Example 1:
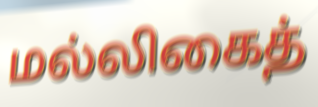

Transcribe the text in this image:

மல்லிகைத்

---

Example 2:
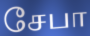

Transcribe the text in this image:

சேபா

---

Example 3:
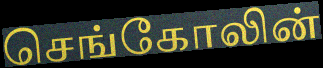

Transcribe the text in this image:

செங்கோலின்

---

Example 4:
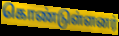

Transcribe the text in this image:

கொண்டுள்ளனர்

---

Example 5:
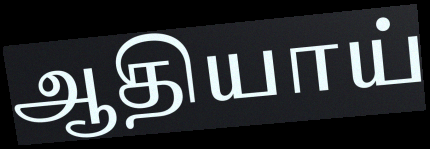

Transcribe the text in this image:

ஆதியாய்